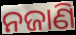
ନଜାଣି